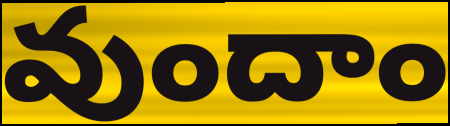
వుందాం